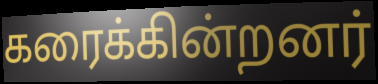
கரைக்கின்றனர்